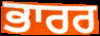
ਭਾਰਰ